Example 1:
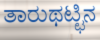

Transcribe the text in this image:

ತಾರುಥಟ್ಟಿನ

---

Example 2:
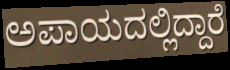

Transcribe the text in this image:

ಅಪಾಯದಲ್ಲಿದ್ದಾರೆ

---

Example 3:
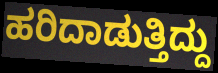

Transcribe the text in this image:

ಹರಿದಾಡುತ್ತಿದ್ದು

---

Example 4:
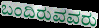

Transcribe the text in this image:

ಬಂದಿರುವವರು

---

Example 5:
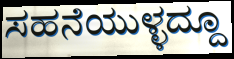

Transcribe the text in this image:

ಸಹನೆಯುಳ್ಳದ್ದೂ